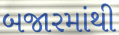
બજારમાંથી